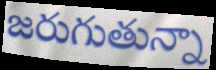
జరుగుతున్నా